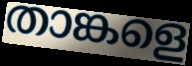
താങ്കളെ